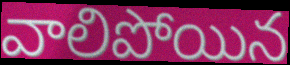
వాలిపోయిన